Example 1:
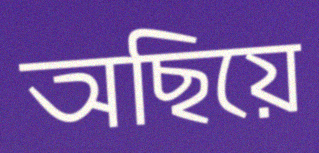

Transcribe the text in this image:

অছিয়ে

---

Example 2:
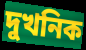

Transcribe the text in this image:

দুখনিক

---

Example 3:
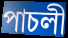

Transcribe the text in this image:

পাচলী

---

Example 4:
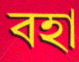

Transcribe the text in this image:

বহা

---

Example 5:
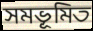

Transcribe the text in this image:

সমভূমিত